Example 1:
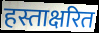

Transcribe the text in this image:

हस्ताक्षरित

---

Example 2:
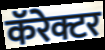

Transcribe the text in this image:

कॅरेक्टर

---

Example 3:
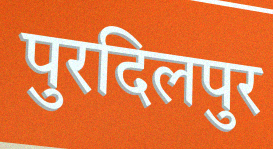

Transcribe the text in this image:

पुरदिलपुर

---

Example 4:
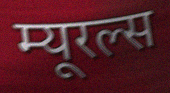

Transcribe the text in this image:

म्यूरल्स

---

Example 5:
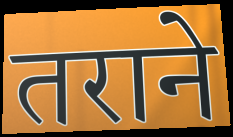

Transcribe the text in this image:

तराने